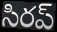
సిరప్